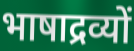
भाषाद्रव्यों